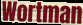
Wortman